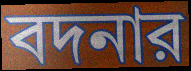
বদনার